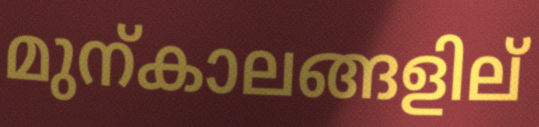
മുന്കാലങ്ങളില്